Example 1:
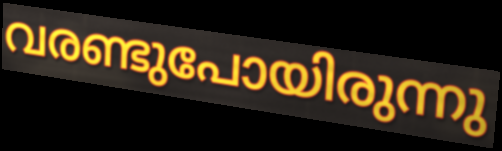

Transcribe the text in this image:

വരണ്ടുപോയിരുന്നു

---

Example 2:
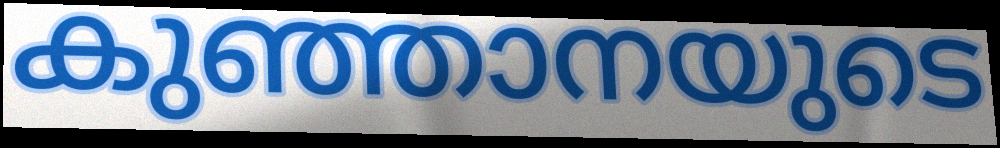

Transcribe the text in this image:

കുഞ്ഞാനയുടെ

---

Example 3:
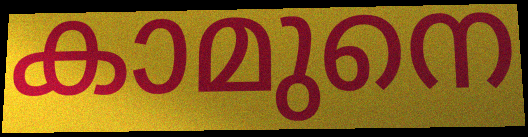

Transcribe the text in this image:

കാമുനെ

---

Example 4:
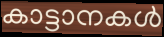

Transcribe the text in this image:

കാട്ടാനകൾ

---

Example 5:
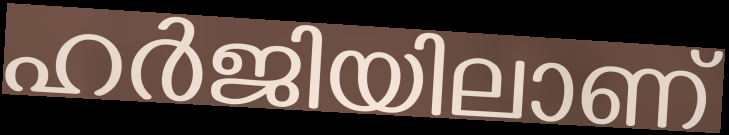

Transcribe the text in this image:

ഹർജിയിലാണ്